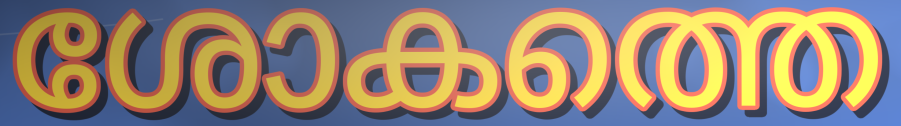
ശോകത്തെ